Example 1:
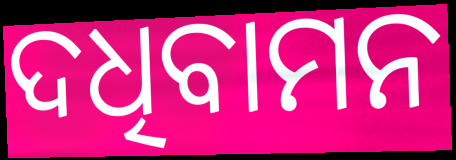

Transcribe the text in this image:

ଦଧିବାମନ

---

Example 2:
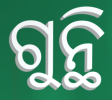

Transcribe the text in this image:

ଗୁନ୍ଥି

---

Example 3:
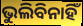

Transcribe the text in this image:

ଭୁଲିବିନାହିଁ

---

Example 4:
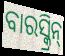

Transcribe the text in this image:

ବାରସ୍କ୍ରିନ୍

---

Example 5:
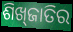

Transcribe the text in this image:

ଶିଖ୍‌ଜାତିର